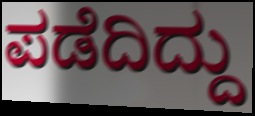
ಪಡೆದಿದ್ದು